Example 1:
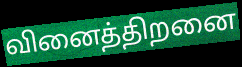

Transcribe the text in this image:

வினைத்திறனை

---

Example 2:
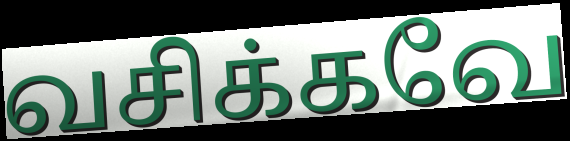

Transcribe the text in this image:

வசிக்கவே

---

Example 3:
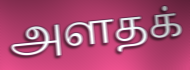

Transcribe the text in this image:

அளதக்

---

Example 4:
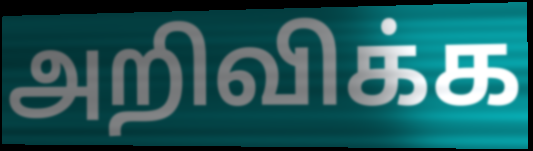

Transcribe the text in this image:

அறிவிக்க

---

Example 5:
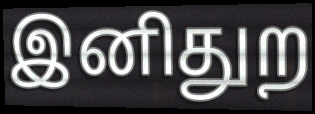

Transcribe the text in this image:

இனிதுற